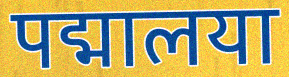
पद्मालया